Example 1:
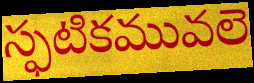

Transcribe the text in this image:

స్ఫటికమువలె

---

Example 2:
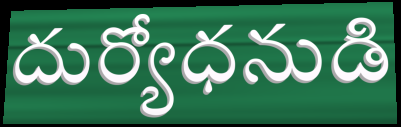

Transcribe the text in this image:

దుర్యోధనుడి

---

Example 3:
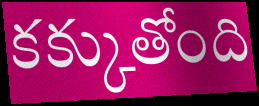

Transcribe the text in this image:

కక్కుతోంది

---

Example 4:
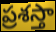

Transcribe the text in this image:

ప్రశస్తా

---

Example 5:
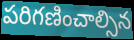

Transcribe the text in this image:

పరిగణించాల్సిన